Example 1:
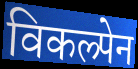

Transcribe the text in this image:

विकल्पेन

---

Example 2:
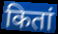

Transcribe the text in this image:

कितां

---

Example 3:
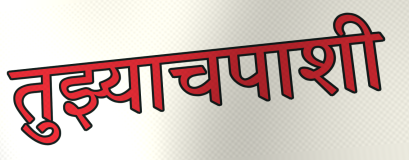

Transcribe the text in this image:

तुझ्याचपाशी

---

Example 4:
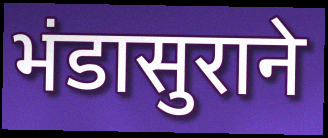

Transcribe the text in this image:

भंडासुराने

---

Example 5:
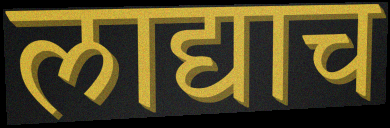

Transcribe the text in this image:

लाद्याच